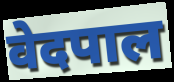
वेदपाल